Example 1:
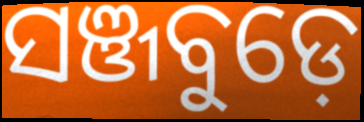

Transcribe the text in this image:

ସଞ୍ଜବୁଡ଼େ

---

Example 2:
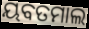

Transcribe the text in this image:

ୟବତମାଲ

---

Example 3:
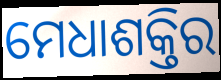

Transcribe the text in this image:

ମେଧାଶକ୍ତିର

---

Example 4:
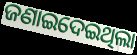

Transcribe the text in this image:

ଜଣାଇଦେଇଥିଲା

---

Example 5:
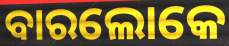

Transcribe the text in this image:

ବାରଲୋକେ